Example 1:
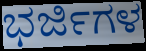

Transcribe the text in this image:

ಭರ್ಜಿಗಳ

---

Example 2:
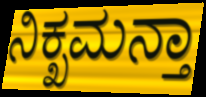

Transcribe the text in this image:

ನಿಕ್ಖಮನ್ತಾ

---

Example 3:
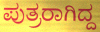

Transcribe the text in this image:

ಪುತ್ರರಾಗಿದ್ದ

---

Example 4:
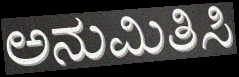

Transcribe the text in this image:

ಅನುಮಿತಿಸಿ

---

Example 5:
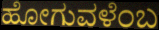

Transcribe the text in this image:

ಹೋಗುವಳೆಂಬ